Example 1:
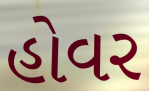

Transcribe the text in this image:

હોવર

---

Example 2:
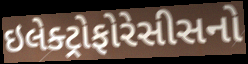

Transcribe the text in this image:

ઇલેક્ટ્રોફોરેસીસનો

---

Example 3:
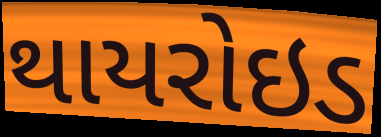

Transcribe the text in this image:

થાયરોઇડ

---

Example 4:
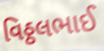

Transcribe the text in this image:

વિઠ્ઠલભાઈ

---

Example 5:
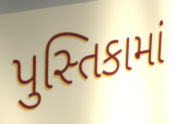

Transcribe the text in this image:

પુસ્તિકામાં